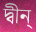
দ্বীন্